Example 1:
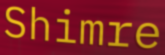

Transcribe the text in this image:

Shimre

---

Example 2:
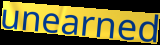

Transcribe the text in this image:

unearned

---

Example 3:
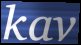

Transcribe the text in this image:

kav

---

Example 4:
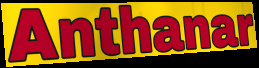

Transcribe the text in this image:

Anthanar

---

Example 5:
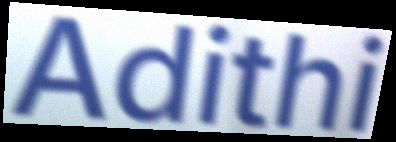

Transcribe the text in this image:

Adithi